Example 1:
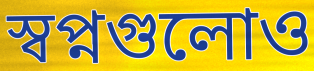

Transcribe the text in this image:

স্বপ্নগুলোও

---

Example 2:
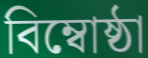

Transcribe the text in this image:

বিম্বোষ্ঠা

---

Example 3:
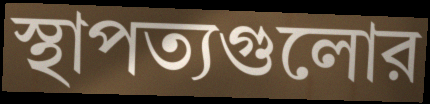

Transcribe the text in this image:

স্থাপত্যগুলোর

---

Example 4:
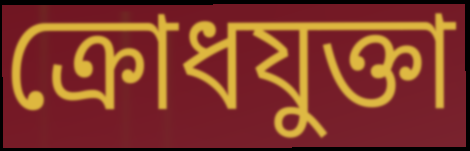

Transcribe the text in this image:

ক্রোধযুক্তা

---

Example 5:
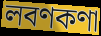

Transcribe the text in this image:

লবণকণা